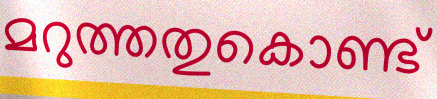
മറുത്തതുകൊണ്ട്